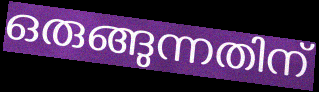
ഒരുങ്ങുന്നതിന്